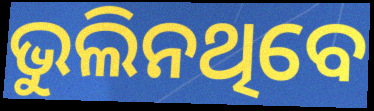
ଭୁଲିନଥିବେ